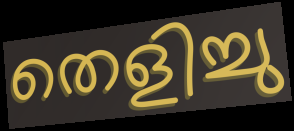
തെളിച്ചു